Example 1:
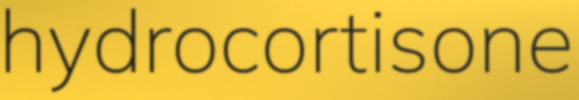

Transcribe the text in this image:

hydrocortisone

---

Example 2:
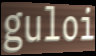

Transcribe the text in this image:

guloi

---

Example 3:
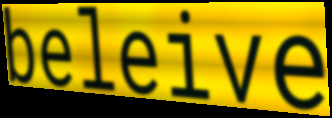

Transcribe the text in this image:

beleive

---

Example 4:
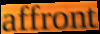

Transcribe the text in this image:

affront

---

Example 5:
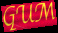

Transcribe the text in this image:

GUM